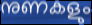
നുണകളും